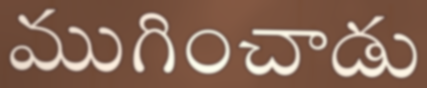
ముగించాడు